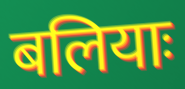
बलियाः